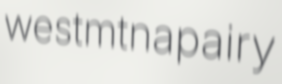
westmtnapairy